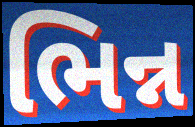
ભિન્ન